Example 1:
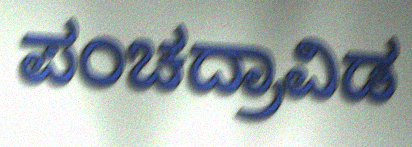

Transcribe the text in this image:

ಪಂಚದ್ರಾವಿಡ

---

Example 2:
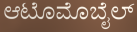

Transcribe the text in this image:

ಆಟೊಮೊಬೈಲ್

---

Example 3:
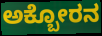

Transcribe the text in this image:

ಅಕ್ಬೋರನ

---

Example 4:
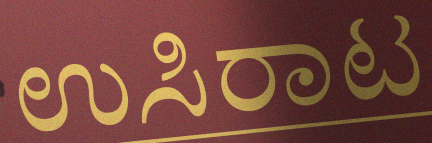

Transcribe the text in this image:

ಉಸಿರಾಟ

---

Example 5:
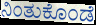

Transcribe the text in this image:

ನಿಂತುಕೊಂಡೆ